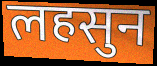
लहसुन